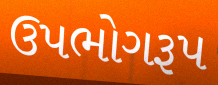
ઉપભોગરૂપ